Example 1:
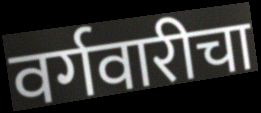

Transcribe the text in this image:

वर्गवारीचा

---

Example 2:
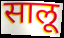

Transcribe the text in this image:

सालू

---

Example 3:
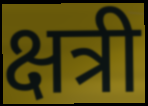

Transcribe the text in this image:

क्षत्री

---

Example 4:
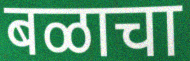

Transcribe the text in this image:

बळाचा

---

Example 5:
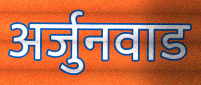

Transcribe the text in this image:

अर्जुनवाड